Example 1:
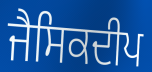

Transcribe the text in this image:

ਜੈਸਿਕਦੀਪ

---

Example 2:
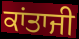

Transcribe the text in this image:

ਕਾਂਤਾਜੀ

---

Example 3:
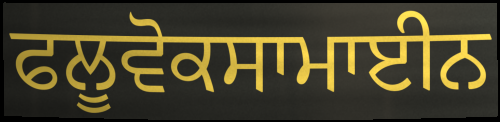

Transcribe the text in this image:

ਫਲੂਵੋਕਸਾਮਾਈਨ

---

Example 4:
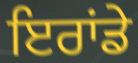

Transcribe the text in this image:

ਇਰਾਂਡੇ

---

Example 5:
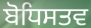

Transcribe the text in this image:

ਬੋਧਿਸਤਵ